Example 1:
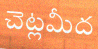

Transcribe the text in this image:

చెట్లమీద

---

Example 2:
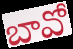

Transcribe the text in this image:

బావో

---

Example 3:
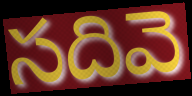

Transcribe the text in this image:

సదివె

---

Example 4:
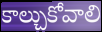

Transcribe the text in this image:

కాల్చుకోవాలి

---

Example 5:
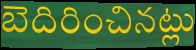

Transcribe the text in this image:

బెదిరించినట్లు